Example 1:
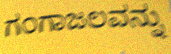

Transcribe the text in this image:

ಗಂಗಾಜಲವನ್ನು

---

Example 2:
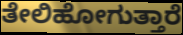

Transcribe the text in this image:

ತೇಲಿಹೋಗುತ್ತಾರೆ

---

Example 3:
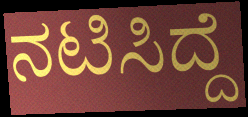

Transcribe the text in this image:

ನಟಿಸಿದ್ದೆ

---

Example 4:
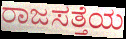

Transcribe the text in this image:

ರಾಜಸತ್ತೆಯ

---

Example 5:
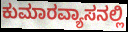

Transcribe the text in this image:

ಕುಮಾರವ್ಯಾಸನಲ್ಲಿ